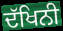
ਦੱਖਿਨੀ